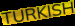
TURKISH